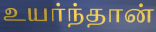
உயர்ந்தான்